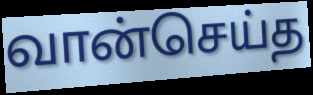
வான்செய்த